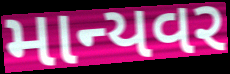
માન્યવર